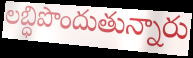
లబ్ధిపొందుతున్నారు